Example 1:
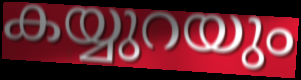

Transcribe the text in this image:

കയ്യുറയും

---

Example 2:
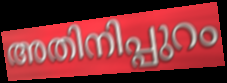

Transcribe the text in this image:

അതിനിപ്പുറം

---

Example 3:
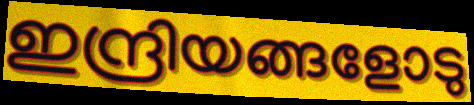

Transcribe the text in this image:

ഇന്ദ്രിയങ്ങളോടു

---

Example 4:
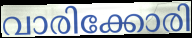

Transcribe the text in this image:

വാരിക്കോരി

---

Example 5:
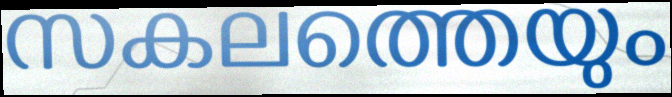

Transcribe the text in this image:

സകലത്തെയും